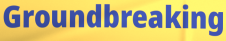
Groundbreaking